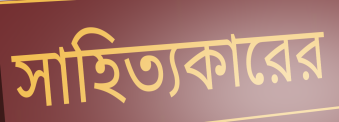
সাহিত্যকারের